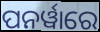
ପନର୍ୱାରେ